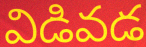
విడివడ